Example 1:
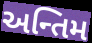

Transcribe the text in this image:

અન્તિમ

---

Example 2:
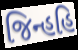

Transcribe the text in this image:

જિન્હહિ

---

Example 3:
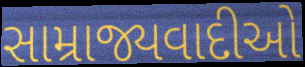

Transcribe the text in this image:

સામ્રાજ્યવાદીઓ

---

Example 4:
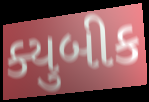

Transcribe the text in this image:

ક્યુબીક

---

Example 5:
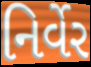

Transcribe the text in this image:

નિર્વેર